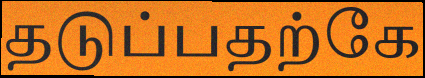
தடுப்பதற்கே